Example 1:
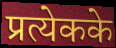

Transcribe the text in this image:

प्रत्येकके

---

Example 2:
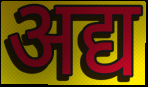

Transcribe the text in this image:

अद्य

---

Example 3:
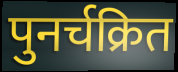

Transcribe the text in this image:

पुनर्चक्रित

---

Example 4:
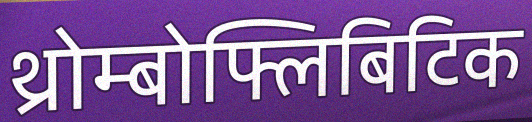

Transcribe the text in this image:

थ्रोम्बोफ्लिबिटिक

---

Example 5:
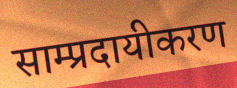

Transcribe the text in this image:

साम्प्रदायीकरण